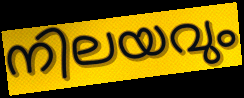
നിലയവും